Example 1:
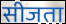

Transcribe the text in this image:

सीजता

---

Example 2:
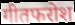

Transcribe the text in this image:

गीतफरोश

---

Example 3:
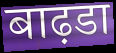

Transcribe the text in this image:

बाढ़डा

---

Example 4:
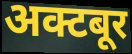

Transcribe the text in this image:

अक्टबूर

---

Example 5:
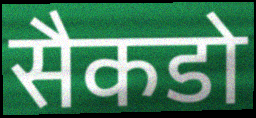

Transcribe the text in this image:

सैकडो